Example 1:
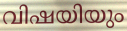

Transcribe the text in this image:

വിഷയിയും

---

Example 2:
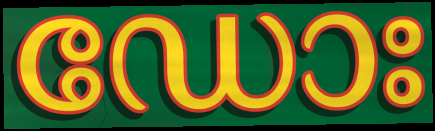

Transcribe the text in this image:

ഡോഃ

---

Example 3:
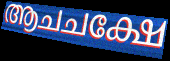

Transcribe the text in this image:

ആചചക്ഷേ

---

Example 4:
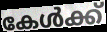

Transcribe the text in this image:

കേൾക്ക്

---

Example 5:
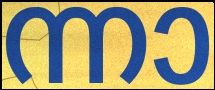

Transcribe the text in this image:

ന്നാ